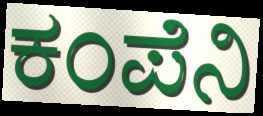
ಕಂಪೆನಿ